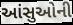
આંસુઓની